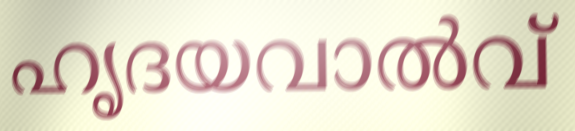
ഹൃദയവാൽവ്